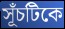
সূঁচটিকে